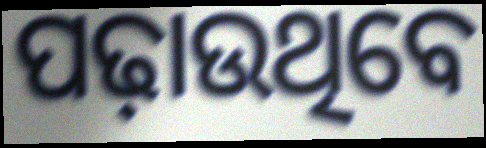
ପଢ଼ାଉଥିବେ